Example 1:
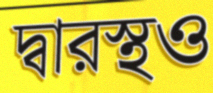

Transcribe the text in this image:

দ্বারস্থও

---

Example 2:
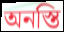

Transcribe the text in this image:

অনস্তি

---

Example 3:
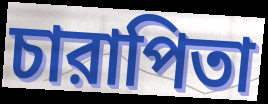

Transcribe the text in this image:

চারাপিতা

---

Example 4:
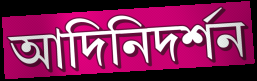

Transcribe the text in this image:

আদিনিদর্শন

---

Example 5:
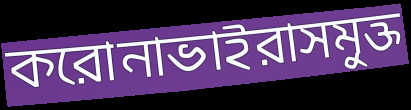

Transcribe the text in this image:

করোনাভাইরাসমুক্ত